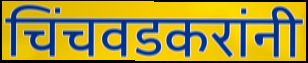
चिंचवडकरांनी